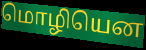
மொழியென